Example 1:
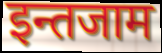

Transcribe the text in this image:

इन्तजाम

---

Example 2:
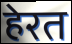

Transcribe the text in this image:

हेरत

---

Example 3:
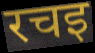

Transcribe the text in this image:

रचइ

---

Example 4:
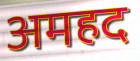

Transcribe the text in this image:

अमहद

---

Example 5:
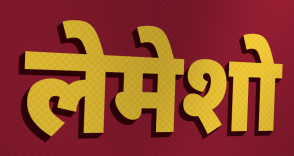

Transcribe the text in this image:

लेमेशो